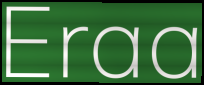
Eraa